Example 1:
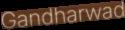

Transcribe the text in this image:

Gandharwad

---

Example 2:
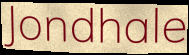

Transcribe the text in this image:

Jondhale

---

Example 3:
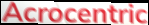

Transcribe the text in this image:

Acrocentric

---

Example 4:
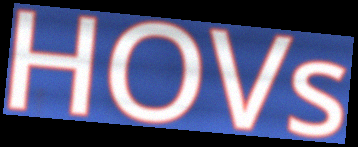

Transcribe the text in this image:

HOVs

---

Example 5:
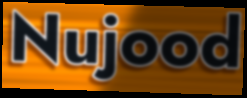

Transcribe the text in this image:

Nujood